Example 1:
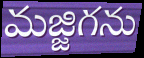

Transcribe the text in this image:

మజ్జిగను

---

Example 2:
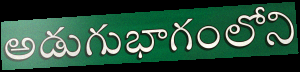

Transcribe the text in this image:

అడుగుభాగంలోని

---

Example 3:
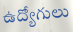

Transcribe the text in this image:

ఉద్యోగులు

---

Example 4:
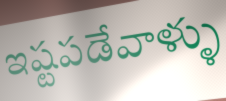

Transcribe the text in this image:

ఇష్టపడేవాళ్ళు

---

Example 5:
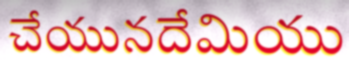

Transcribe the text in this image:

చేయునదేమియు